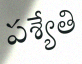
పశ్యేతి